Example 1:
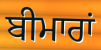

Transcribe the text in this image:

ਬੀਮਾਰਾਂ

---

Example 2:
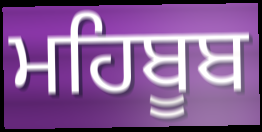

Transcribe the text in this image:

ਮਹਿਬੂਬ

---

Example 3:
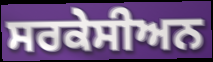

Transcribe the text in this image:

ਸਰਕੇਸੀਅਨ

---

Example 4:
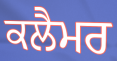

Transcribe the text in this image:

ਕਲੈਮਰ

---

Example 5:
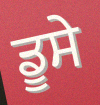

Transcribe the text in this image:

ਡੂਸੇ